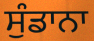
ਸੁੰਡਾਨਾ